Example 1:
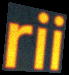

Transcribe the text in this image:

rii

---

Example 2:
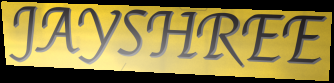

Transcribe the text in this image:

JAYSHREE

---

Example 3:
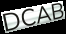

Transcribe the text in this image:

DCAB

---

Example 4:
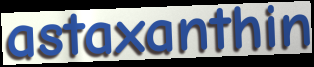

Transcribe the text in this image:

astaxanthin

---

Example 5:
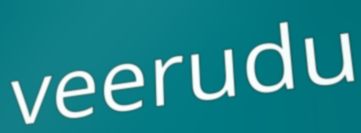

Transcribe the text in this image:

veerudu